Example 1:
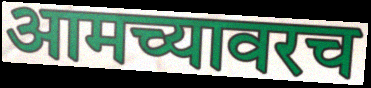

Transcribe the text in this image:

आमच्यावरच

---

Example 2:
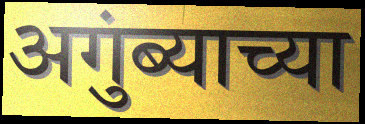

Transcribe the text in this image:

अगुंब्याच्या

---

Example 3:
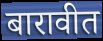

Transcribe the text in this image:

बारावीत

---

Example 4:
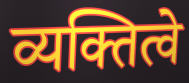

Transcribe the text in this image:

व्यक्तित्वे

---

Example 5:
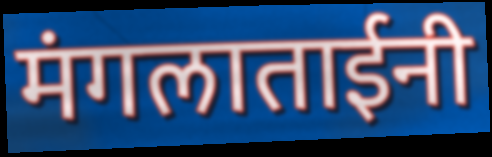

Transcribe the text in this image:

मंगलाताईनी